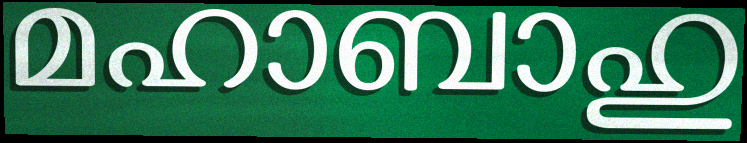
മഹാബാഹു